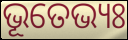
ଭୂତେଭ୍ୟଃ